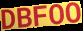
DBFOO